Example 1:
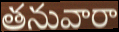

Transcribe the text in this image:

తనువారా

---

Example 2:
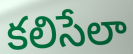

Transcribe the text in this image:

కలిసేలా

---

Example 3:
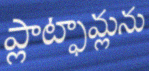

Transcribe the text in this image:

ప్లాట్ఫామ్లను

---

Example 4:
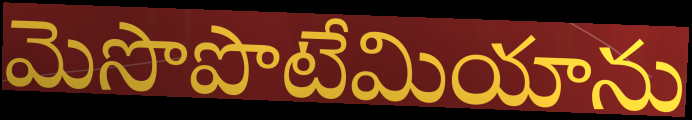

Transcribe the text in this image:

మెసొపొటేమియాను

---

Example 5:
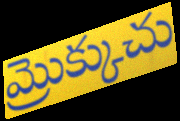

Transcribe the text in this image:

మ్రొక్కుచు